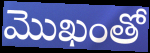
మొఖంతో